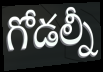
గోడల్నీ